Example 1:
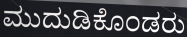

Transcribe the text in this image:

ಮುದುಡಿಕೊಂಡರು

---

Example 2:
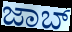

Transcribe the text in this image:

ಜಾಬ್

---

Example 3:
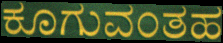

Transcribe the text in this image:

ಕೂಗುವಂತಹ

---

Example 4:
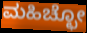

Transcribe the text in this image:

ಮಹಿಚ್ಛೋ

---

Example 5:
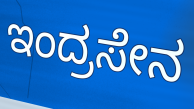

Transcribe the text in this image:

ಇಂದ್ರಸೇನ